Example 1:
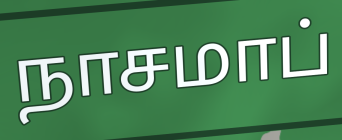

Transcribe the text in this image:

நாசமாப்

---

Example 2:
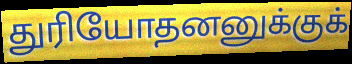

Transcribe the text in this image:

துரியோதனனுக்குக்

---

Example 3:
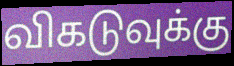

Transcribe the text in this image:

விகடுவுக்கு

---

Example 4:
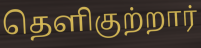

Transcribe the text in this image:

தெளிகுற்றார்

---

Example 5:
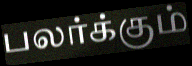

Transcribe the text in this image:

பலர்க்கும்